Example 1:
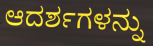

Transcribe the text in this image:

ಆದರ್ಶಗಳನ್ನು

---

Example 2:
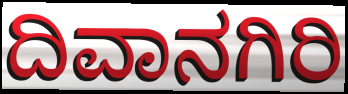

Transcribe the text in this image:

ದಿವಾನಗಿರಿ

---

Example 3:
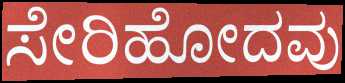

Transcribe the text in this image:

ಸೇರಿಹೋದವು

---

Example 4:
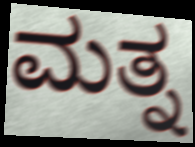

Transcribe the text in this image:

ಮತ್ನ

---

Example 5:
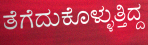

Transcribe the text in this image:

ತೆಗೆದುಕೊಳ್ಳುತ್ತಿದ್ದ